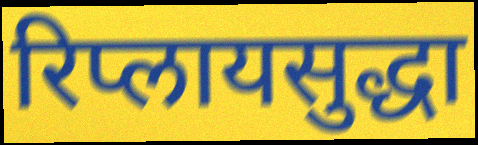
रिप्लायसुद्धा